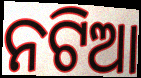
ନଟିଆ